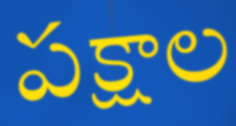
పక్షాల